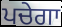
ਪਚੇਗਾ